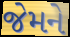
જેમને